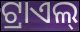
ଟ୍ରାଏଲ୍